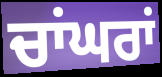
ਚਾਂਘਰਾਂ